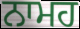
ਨਾਮਹ